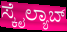
ಸ್ಕೈಲ್ಯಾಬ್